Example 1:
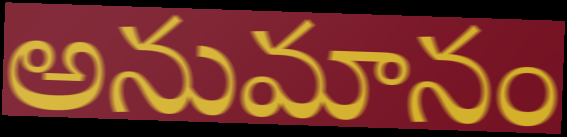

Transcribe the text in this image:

అనుమానం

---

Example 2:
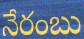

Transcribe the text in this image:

నేరంబు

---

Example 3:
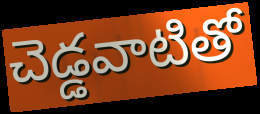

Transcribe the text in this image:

చెడ్డవాటితో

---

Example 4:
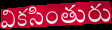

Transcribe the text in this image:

వికసింతురు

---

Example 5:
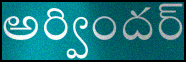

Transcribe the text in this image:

అర్విందర్